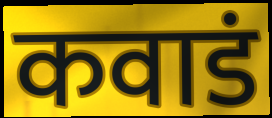
कवाडं